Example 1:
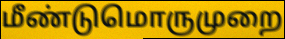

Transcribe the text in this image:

மீண்டுமொருமுறை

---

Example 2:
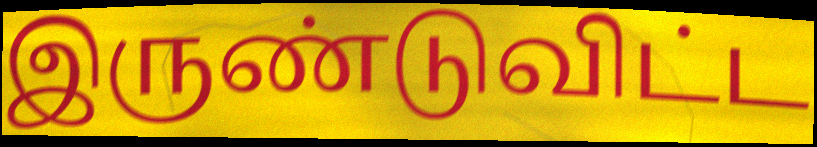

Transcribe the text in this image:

இருண்டுவிட்ட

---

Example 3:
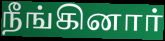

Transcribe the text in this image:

நீங்கினார்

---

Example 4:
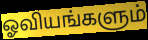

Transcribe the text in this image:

ஓவியங்களும்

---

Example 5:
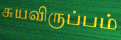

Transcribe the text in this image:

சுயவிருப்பம்